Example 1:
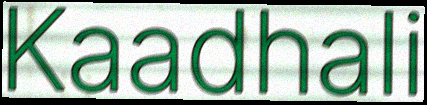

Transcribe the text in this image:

Kaadhali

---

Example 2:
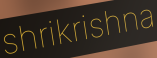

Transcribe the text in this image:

shrikrishna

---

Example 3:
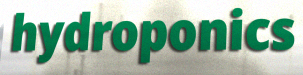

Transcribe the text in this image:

hydroponics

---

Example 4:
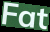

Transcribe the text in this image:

Fat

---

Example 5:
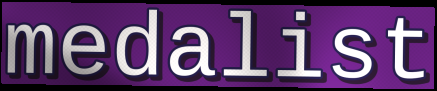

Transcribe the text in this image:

medalist